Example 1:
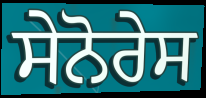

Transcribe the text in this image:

ਸੇਨੋਰੇਸ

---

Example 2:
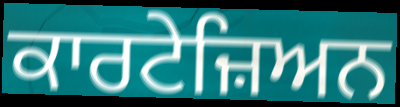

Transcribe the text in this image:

ਕਾਰਟੇਜ਼ਿਅਨ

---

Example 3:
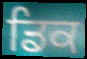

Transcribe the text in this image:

ਡਿਕ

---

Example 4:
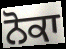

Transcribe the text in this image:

ਨੋਕਾ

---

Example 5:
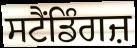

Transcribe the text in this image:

ਸਟੈਂਡਿੰਗਜ਼